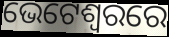
ଭେଟେଶ୍ୱରରେ